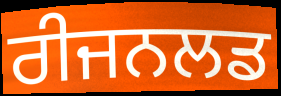
ਰੀਜਨਲਡ